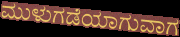
ಮುಳುಗಡೆಯಾಗುವಾಗ